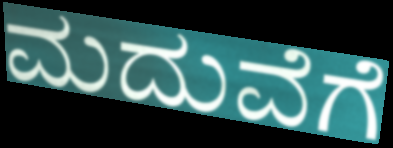
ಮದುವೆಗೆ